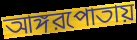
আঙ্গরপোতায়